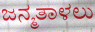
ಜನ್ಮತಾಳಲು